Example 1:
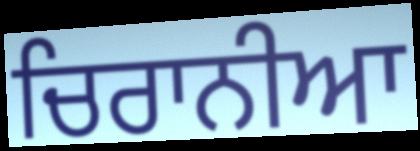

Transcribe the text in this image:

ਚਿਰਾਨੀਆ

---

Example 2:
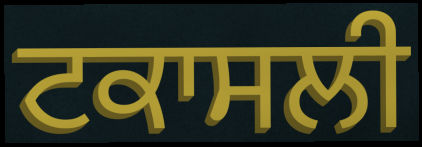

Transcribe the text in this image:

ਟਕਾਸਲੀ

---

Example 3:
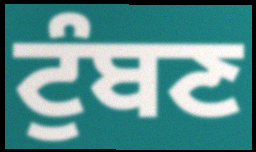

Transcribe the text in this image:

ਟੁੰਬਣ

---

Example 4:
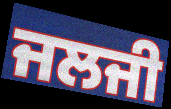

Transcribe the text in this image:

ਜਲਜੀ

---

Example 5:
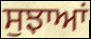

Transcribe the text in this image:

ਸੁਝਾਆਂ